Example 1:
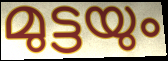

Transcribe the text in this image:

മുട്ടയും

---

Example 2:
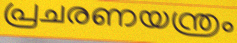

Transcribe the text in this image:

പ്രചരണയന്ത്രം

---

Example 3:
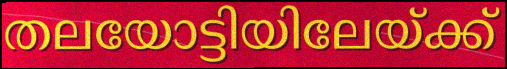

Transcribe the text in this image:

തലയോട്ടിയിലേയ്ക്ക്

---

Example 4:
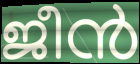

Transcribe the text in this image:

ജീൻ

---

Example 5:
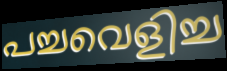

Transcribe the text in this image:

പച്ചവെളിച്ച